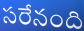
సరేనంది